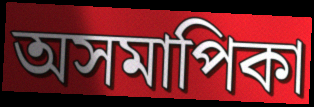
অসমাপিকা